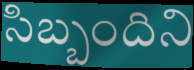
సిబ్బందిని